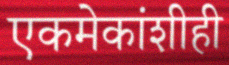
एकमेकांशीही